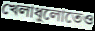
খেলাধুলোতেও